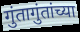
गुंतागुंतांच्या